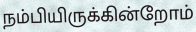
நம்பியிருக்கின்றோம்